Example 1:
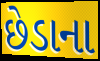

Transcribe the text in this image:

છેડાના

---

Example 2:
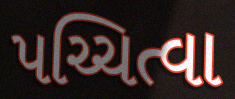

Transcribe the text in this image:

પચ્ચિત્વા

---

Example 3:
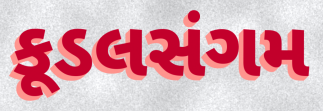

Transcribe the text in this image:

કૂડલસંગમ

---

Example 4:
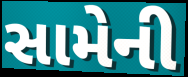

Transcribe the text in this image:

સામેની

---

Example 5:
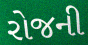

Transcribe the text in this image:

રોજની